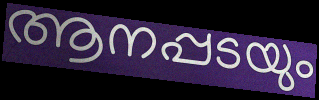
ആനപ്പടയും